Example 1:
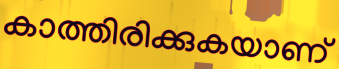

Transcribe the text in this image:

കാത്തിരിക്കുകയാണ്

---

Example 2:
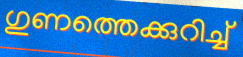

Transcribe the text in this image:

ഗുണത്തെക്കുറിച്ച്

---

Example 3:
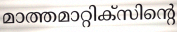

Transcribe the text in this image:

മാത്തമാറ്റിക്സിന്റെ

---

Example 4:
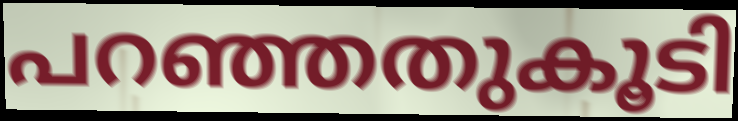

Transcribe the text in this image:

പറഞ്ഞതുകൂടി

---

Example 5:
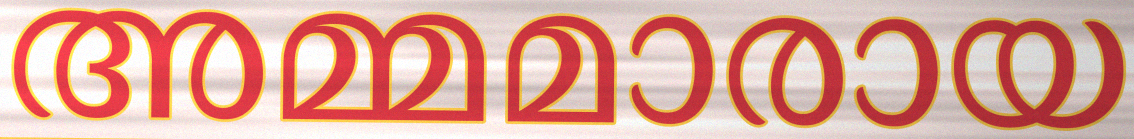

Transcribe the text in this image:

അമ്മമാരായ